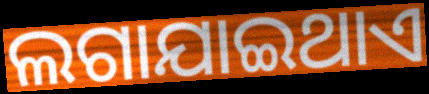
ଲଗାଯାଇଥାଏ